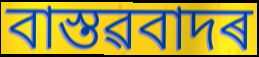
বাস্তৱবাদৰ